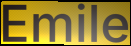
Emile